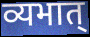
व्यभात्